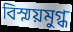
বিস্ময়মুগ্ধ